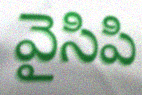
వైసిపి